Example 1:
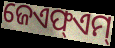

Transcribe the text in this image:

ଜେଏଫ୍ଏମ୍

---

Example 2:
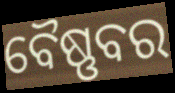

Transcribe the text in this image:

ବୈଷ୍ଣବର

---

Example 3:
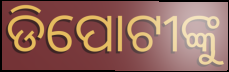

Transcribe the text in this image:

ଡିପୋଟୀଙ୍କୁ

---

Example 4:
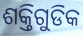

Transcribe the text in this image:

ଶକ୍ତିଗୁଡିକ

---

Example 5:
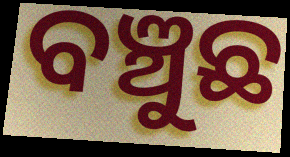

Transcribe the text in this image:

ବଞ୍ଚୁଛ